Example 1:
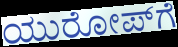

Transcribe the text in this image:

ಯುರೋಪ್‌ಗೆ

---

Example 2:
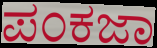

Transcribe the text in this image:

ಪಂಕಜಾ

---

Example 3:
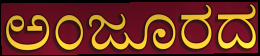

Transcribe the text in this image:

ಅಂಜೂರದ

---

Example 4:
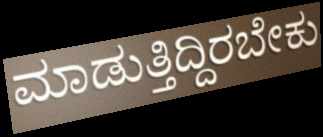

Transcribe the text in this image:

ಮಾಡುತ್ತಿದ್ದಿರಬೇಕು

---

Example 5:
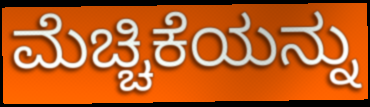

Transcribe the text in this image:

ಮೆಚ್ಚಿಕೆಯನ್ನು